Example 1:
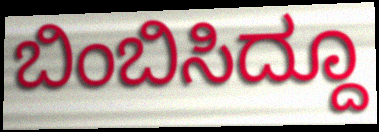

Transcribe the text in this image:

ಬಿಂಬಿಸಿದ್ದೂ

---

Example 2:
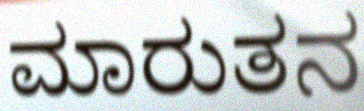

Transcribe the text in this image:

ಮಾರುತನ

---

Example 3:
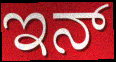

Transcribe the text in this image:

ಇನ್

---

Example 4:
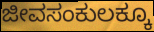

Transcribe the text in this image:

ಜೀವಸಂಕುಲಕ್ಕೂ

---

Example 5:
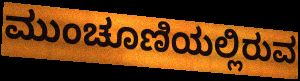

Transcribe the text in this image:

ಮುಂಚೂಣಿಯಲ್ಲಿರುವ